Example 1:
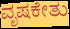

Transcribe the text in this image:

ವೃಷಕೇತು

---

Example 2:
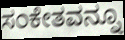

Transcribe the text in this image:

ಸಂಕೇತವನ್ನೂ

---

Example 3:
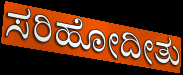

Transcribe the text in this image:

ಸರಿಹೋದೀತು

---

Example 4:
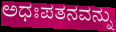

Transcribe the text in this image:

ಅಧಃಪತನವನ್ನು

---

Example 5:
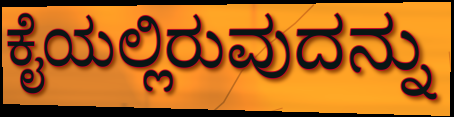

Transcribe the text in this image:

ಕೈಯಲ್ಲಿರುವುದನ್ನು